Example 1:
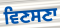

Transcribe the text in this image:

ਵਿਣਸਣਾ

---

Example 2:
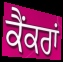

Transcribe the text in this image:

ਕੈਂਕਰਾਂ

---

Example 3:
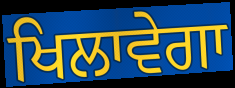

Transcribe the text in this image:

ਖਿਲਾਵੇਗਾ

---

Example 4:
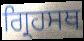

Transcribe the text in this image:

ਗ੍ਰਿਹਸਥ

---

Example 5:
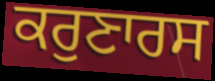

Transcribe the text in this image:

ਕਰੁਣਾਰਸ